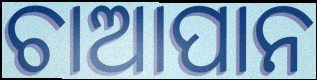
ଚାଆପାନ